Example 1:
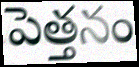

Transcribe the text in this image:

పెత్తనం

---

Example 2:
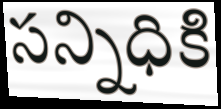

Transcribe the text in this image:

సన్నిధికి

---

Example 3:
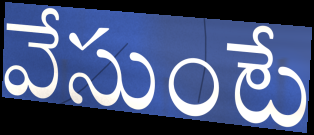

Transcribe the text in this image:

వేసుంటే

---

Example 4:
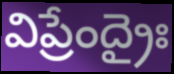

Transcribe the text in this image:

విప్రేంద్రైః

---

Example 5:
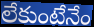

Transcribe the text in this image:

లేకుంటేనేం